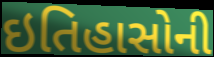
ઇતિહાસોની